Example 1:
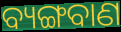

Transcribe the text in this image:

ବ୍ୟଙ୍ଗବାଣ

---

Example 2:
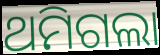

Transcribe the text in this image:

ଥମିଗଲା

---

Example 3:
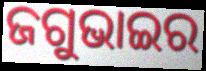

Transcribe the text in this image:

ଜଗୁଭାଇର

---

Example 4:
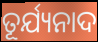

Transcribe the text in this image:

ତୂର୍ଯ୍ୟନାଦ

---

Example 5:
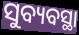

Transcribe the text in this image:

ସୁବ୍ୟବସ୍ଥା